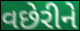
વછેરીને